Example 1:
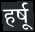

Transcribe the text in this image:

हर्षू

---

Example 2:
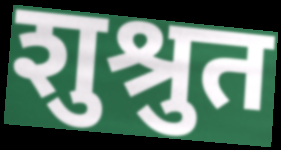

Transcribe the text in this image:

शुश्रुत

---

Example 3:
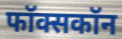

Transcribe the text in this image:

फॉक्सकॉन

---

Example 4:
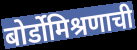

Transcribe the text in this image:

बोर्डोमिश्रणाची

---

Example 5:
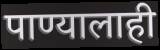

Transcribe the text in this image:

पाण्यालाही